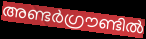
അണ്ടർഗ്രൗണ്ടിൽ